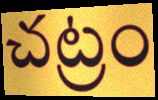
చట్రం